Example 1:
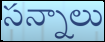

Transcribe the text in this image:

సన్నాలు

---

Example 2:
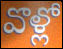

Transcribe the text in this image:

వొళ్లో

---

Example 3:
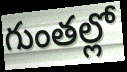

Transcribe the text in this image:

గుంతల్లో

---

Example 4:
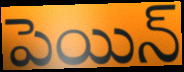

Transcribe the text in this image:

పెయిన్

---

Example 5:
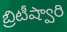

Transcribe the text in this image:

బ్రిటీష్వారి